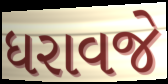
ધરાવજે